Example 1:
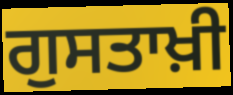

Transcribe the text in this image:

ਗੁਸਤਾਖ਼ੀ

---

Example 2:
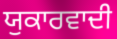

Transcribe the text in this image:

ਯੁਕਾਰਵਾਦੀ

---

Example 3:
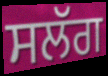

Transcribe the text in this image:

ਸਲੱਗ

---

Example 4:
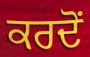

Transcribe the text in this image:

ਕਰਦੋਂ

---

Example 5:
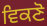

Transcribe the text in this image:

ਵਿਕਣੋ